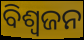
ବିଶ୍ଵଜନ